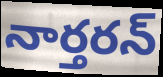
నార్తరన్